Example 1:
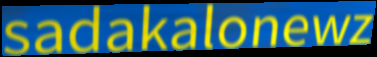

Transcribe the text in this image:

sadakalonewz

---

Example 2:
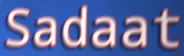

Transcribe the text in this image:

Sadaat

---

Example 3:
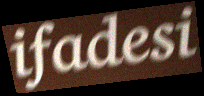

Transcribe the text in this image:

ifadesi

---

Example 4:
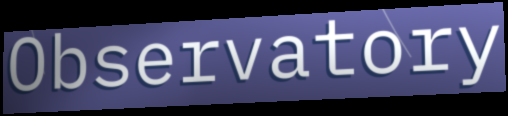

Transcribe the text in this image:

Observatory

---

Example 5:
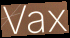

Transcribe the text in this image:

Vax